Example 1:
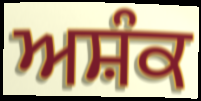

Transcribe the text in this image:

ਅਸ਼ੰਕ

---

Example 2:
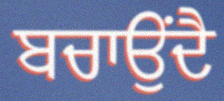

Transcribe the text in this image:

ਬਚਾਉਂਦੈ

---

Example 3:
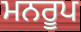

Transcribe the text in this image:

ਮਨਰੂਪ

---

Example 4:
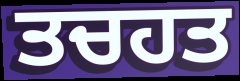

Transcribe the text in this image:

ਤਚਹਤ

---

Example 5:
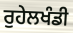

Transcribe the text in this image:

ਰੁਹੇਲਖੰਡੀ